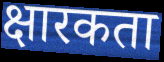
क्षारकता